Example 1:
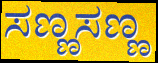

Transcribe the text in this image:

ಸಣ್ಣಸಣ್ಣ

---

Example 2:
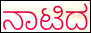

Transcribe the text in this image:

ನಾಟಿದ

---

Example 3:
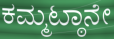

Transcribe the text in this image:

ಕಮ್ಮಟ್ಠಾನೇ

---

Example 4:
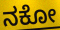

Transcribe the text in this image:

ನಕೋ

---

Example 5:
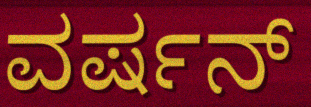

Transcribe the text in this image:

ವರ್ಷನ್